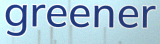
greener